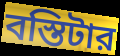
বস্তিটার